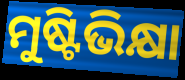
ମୁଷ୍ଟିଭିକ୍ଷା